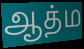
ஆத்ம